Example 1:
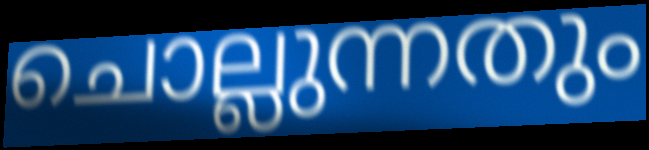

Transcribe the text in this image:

ചൊല്ലുന്നതും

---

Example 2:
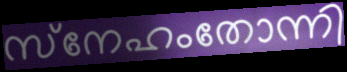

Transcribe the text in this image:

സ്‌നേഹംതോന്നി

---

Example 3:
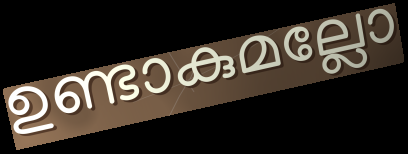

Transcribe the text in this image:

ഉണ്ടാകുമല്ലോ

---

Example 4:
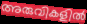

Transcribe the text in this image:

അരുവികളിൽ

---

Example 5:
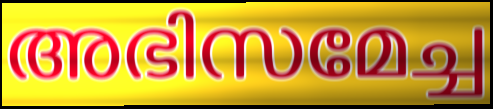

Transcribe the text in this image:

അഭിസമേച്ച